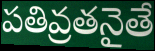
పతివ్రతనైతే